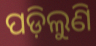
ପଡ଼ିଲୁଣି